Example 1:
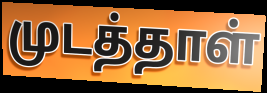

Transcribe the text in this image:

முடத்தாள்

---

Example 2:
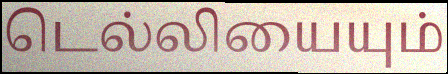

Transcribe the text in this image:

டெல்லியையும்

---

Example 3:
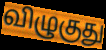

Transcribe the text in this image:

விழுகுது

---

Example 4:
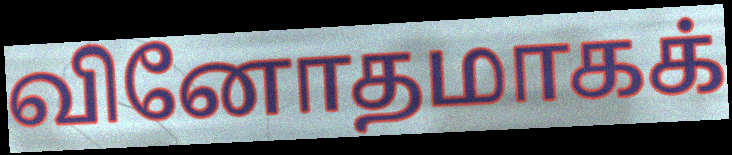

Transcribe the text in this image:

வினோதமாகக்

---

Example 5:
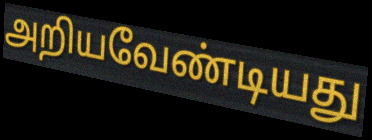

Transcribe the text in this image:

அறியவேண்டியது